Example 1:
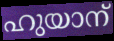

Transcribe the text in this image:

ഹുയാന്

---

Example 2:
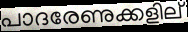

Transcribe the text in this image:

പാദരേണുക്കളില്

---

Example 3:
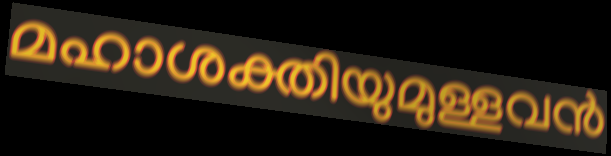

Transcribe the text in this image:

മഹാശക്തിയുമുള്ളവൻ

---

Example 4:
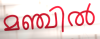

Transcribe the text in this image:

മഞ്ചിൽ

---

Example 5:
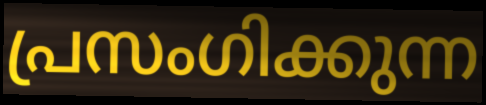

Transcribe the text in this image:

പ്രസംഗിക്കുന്ന